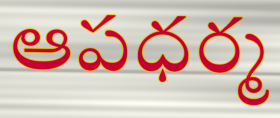
ఆపధర్మ